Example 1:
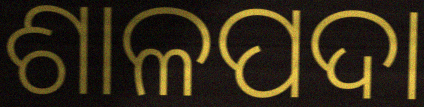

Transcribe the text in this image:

ଶାଳପଦା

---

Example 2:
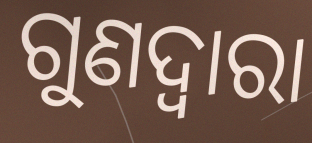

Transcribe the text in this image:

ଗୁଣଦ୍ଵାରା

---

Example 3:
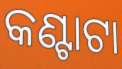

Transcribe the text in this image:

କଣ୍ଟାଟା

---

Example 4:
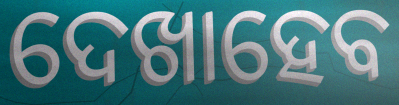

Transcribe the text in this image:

ଦେଖାହେବ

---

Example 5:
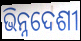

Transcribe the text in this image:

ଭିନ୍ନଦେଶୀ